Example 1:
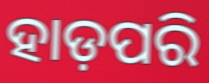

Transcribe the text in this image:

ହାଡ଼ପରି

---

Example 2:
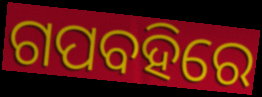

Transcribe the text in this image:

ଗପବହିରେ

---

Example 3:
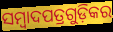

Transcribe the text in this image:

ସମ୍ୱାଦପତ୍ରଗୁଡ଼ିକର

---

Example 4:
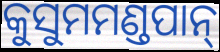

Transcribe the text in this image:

କୁସୁମମଣ୍ଡପାନ୍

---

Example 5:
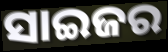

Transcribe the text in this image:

ସାଇଜର